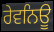
ਰੇਵਨਿਊ